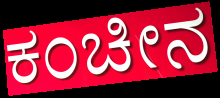
ಕಂಚೀನ